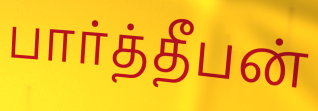
பார்த்தீபன்